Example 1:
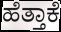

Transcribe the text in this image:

ಹೆತ್ತಾಕೆ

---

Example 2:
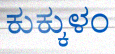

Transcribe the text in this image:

ಕುಕ್ಕುಳಂ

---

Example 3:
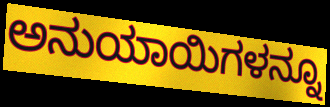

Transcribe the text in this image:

ಅನುಯಾಯಿಗಳನ್ನೂ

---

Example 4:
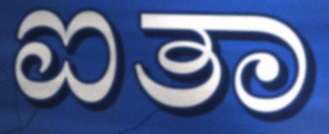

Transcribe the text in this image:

ಐತಾ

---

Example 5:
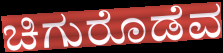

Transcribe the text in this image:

ಚಿಗುರೊಡೆವ